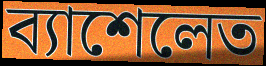
ব্যাশেলেত